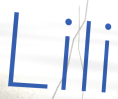
Lili